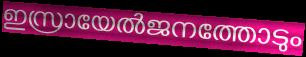
ഇസ്രായേൽജനത്തോടും